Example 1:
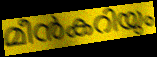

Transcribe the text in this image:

മീൻകറിയും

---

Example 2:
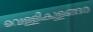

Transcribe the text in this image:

വെള്ളികുളങ്ങര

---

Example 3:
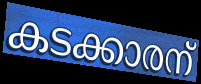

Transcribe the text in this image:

കടക്കാരന്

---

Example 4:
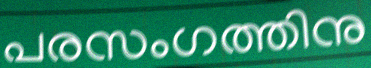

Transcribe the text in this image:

പരസംഗത്തിനു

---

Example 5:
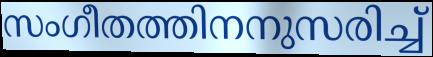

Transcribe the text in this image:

സംഗീതത്തിനനുസരിച്ച്